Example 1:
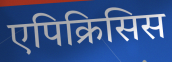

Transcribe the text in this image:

एपिक्रिसिस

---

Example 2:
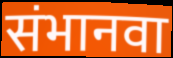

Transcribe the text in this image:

संभानवा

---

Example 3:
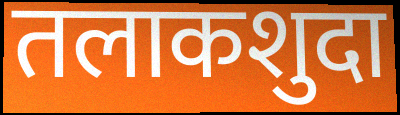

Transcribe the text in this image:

तलाकशुदा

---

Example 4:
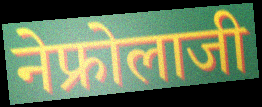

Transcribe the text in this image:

नेफ्रोलाजी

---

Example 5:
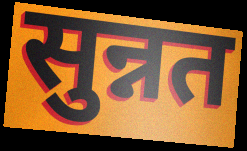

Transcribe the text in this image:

सुन्नत